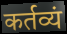
कर्तव्यं